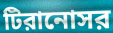
টিরানোসর